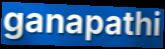
ganapathi